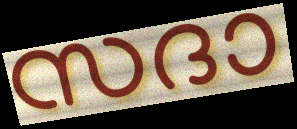
സദാ